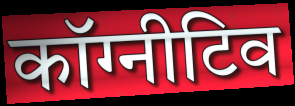
कॉग्‍नीटिव